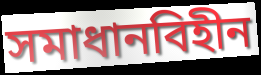
সমাধানবিহীন